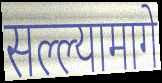
सल्ल्यामागे